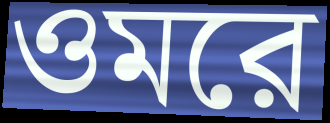
ওমরে